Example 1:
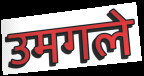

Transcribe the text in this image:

उमगले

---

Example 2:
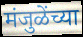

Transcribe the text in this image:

मंजुळेंच्या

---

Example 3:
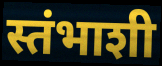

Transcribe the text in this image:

स्तंभाशी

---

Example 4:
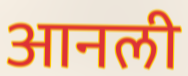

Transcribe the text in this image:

आनली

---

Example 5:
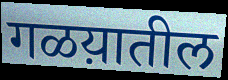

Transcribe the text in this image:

गळय़ातील